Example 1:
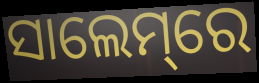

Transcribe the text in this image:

ସାଲେମ୍‌ରେ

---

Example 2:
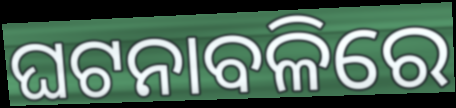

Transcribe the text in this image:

ଘଟନାବଳିରେ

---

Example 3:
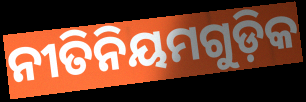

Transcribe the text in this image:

ନୀତିନିୟମଗୁଡ଼ିକ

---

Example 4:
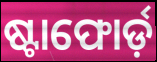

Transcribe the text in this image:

ଷ୍ଟାଫୋର୍ଡ଼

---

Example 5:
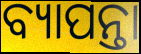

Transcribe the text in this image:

ବ୍ୟାପନ୍ତା